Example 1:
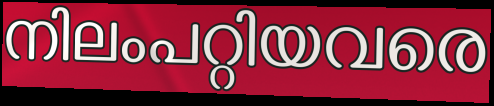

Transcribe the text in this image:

നിലംപറ്റിയവരെ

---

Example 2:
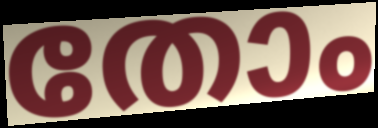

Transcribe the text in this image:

തോം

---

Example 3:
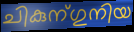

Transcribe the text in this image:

ചികുന്ഗുനിയ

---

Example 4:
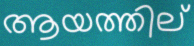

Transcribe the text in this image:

ആയത്തില്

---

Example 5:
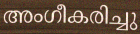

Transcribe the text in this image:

അംഗീകരിച്ചു